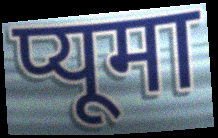
प्यूमा